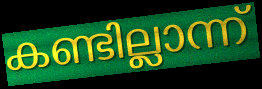
കണ്ടില്ലാന്ന്